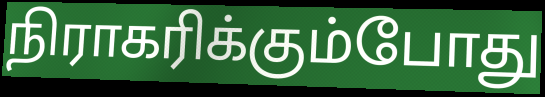
நிராகரிக்கும்போது